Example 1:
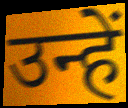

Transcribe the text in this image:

उन्‍हें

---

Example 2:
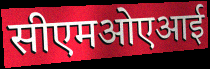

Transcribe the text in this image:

सीएमओएआई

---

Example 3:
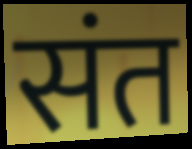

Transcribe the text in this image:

संत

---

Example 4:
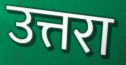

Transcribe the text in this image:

उत्तरा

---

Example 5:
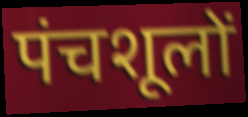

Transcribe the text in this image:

पंचशूलों